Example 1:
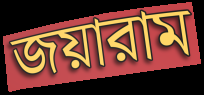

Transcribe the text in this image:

জয়ারাম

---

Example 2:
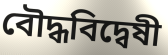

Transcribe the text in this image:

বৌদ্ধবিদ্বেষী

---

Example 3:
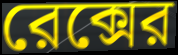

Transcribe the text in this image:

রেক্সের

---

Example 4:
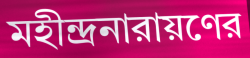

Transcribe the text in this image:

মহীন্দ্রনারায়ণের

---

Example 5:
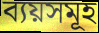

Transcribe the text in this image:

ব্যয়সমূহ